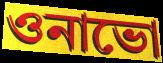
ওনাভো